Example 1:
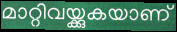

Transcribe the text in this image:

മാറ്റിവയ്ക്കുകയാണ്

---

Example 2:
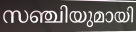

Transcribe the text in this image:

സഞ്ചിയുമായി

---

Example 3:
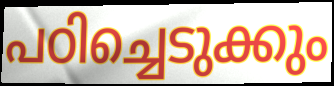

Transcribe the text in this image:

പഠിച്ചെടുക്കും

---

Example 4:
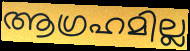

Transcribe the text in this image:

ആഗ്രഹമില്ല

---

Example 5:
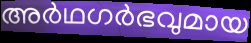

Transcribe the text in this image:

അർഥഗർഭവുമായ